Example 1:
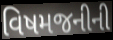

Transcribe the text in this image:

વિષમજનીની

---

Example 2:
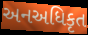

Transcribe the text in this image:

અનઅધિકૃત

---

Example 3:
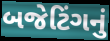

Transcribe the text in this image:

બજેટિંગનું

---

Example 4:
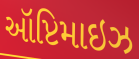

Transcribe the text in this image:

ઑપ્ટિમાઇઝ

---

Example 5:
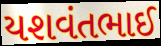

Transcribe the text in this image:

યશવંતભાઈ